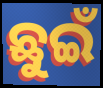
ଛୁଇଁ